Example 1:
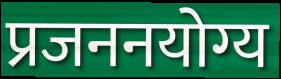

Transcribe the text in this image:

प्रजननयोग्य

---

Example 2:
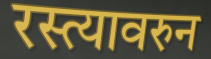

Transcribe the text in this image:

रस्त्यावरुन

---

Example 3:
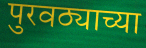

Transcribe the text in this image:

पुरवठ्याच्या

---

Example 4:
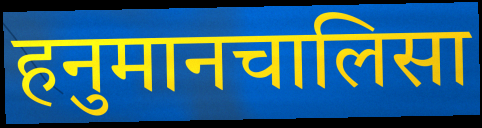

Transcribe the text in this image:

हनुमानचालिसा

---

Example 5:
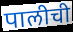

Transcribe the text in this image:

पालीची